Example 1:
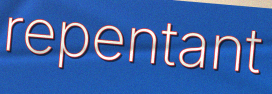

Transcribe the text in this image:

repentant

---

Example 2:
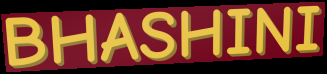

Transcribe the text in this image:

BHASHINI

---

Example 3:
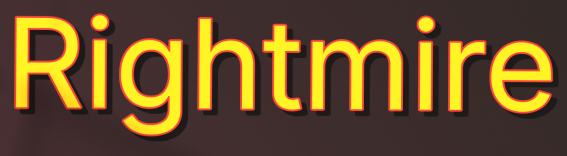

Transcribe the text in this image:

Rightmire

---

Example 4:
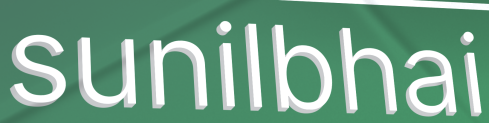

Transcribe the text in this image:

sunilbhai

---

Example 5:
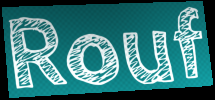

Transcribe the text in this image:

Rouf